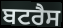
ਬਟਰੈਸ